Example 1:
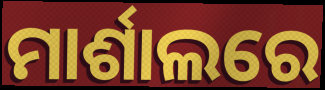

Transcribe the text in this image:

ମାର୍ଶାଲରେ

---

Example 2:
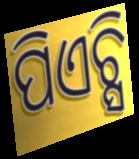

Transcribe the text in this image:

ପିଏଚ୍ସି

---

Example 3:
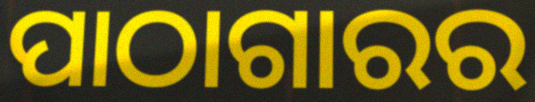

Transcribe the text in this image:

ପାଠାଗାରର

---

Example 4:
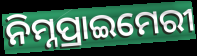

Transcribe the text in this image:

ନିମ୍ନପ୍ରାଇମେରୀ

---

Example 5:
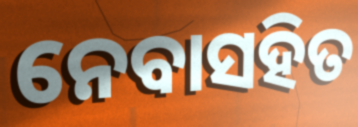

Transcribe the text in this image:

ନେବାସହିତ